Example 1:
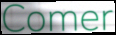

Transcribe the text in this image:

Comer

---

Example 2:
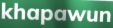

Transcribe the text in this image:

khapawun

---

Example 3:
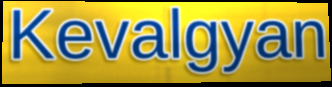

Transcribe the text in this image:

Kevalgyan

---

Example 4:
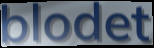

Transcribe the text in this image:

blodet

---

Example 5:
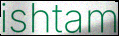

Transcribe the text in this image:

ishtam